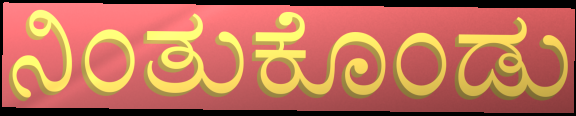
ನಿಂತುಕೊಂಡು